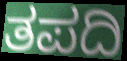
ತಪದಿ